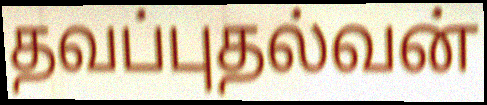
தவப்புதல்வன்